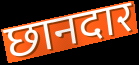
छानदार